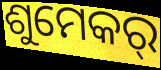
ଶୁମେକର୍